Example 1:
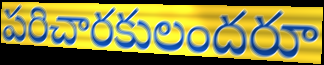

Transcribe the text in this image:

పరిచారకులందరూ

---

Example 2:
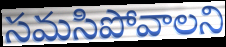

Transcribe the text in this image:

సమసిపోవాలని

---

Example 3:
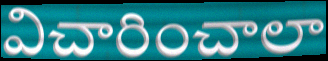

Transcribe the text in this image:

విచారించాలా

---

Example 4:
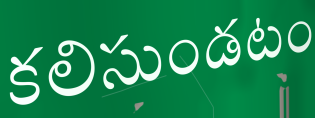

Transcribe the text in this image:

కలిసుండటం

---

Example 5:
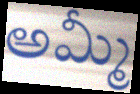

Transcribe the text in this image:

అమ్మీ